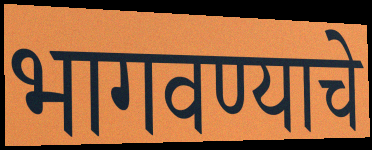
भागवण्याचे